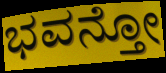
ಭವನ್ತೋ